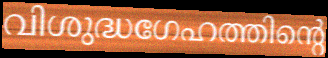
വിശുദ്ധഗേഹത്തിന്റെ